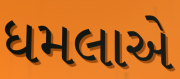
ધમલાએ